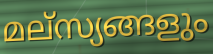
മല്സ്യങ്ങളും